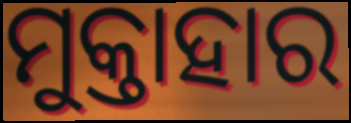
ମୁକ୍ତାହାର